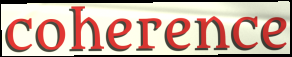
coherence